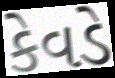
કેવડે